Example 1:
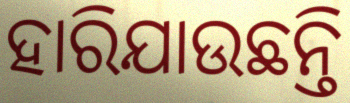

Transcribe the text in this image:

ହାରିଯାଉଛନ୍ତି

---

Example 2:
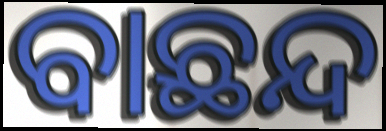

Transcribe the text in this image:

ବାଛନ୍ଦ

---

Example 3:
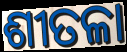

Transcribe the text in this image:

ଶୀତଳା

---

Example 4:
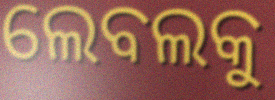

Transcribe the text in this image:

ଲେବଲକୁ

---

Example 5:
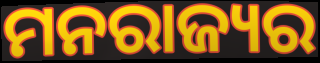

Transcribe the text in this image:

ମନରାଜ୍ୟର